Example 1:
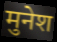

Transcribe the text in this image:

मुनेश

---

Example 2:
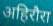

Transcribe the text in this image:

अहिरौरा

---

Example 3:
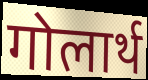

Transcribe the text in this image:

गोलार्थ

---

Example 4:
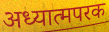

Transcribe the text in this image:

अध्यात्मपरक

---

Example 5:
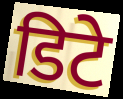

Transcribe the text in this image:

डिटे